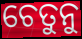
ଚେତୁନୁ